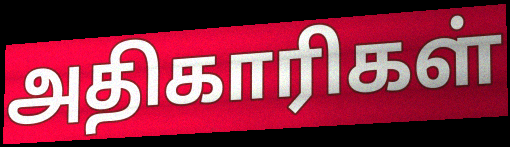
அதிகாரிகள்